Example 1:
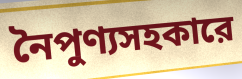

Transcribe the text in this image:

নৈপুণ্যসহকারে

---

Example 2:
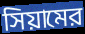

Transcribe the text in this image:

সিয়ামের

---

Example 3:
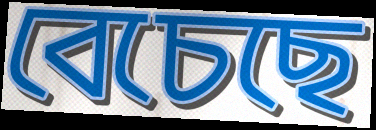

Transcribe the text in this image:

বেচেছে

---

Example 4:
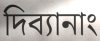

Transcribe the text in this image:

দিব্যানাং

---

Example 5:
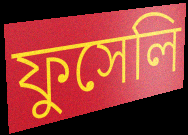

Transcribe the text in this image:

ফুসেলি